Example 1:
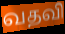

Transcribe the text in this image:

வதவி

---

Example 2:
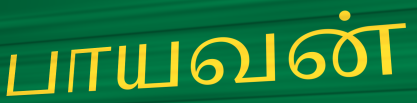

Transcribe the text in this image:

பாயவன்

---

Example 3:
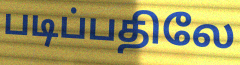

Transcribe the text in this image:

படிப்பதிலே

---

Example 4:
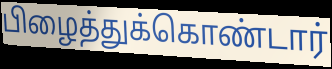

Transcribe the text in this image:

பிழைத்துக்கொண்டார்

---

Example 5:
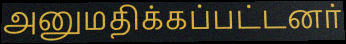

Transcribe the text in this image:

அனுமதிக்கப்பட்டனர்